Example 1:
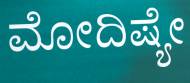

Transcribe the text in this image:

ಮೋದಿಷ್ಯೇ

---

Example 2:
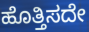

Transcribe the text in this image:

ಹೊತ್ತಿಸದೇ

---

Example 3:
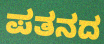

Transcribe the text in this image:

ಪತನದ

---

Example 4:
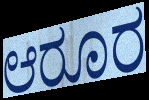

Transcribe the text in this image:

ಆರೂರ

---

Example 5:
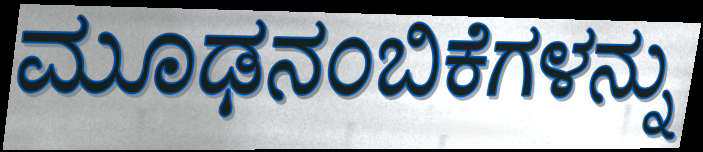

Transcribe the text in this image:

ಮೂಢನಂಬಿಕೆಗಳನ್ನು